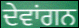
ਦੇਵਾਂਗਨ